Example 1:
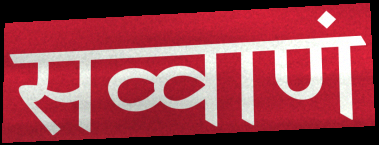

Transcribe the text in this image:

सव्वाणं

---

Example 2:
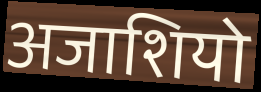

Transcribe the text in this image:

अजाशियो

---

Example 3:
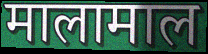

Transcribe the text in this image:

मालामाल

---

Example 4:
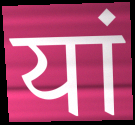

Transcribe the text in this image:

यां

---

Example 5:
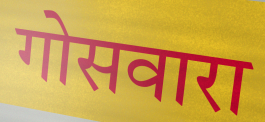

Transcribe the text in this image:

गोसवारा